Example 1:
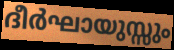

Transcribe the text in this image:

ദീർഘായുസ്സും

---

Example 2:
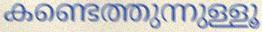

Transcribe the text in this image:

കണ്ടെത്തുന്നുള്ളൂ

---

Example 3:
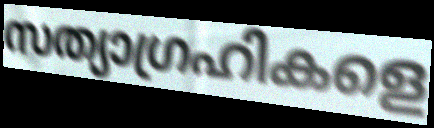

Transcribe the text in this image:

സത്യാഗ്രഹികളെ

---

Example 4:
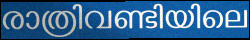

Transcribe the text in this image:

രാത്രിവണ്ടിയിലെ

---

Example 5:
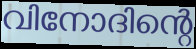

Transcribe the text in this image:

വിനോദിന്റെ